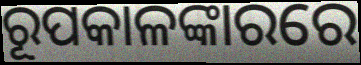
ରୂପକାଳଙ୍କାରରେ